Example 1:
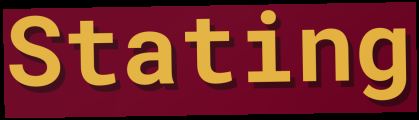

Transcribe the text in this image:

Stating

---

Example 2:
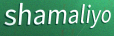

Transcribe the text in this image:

shamaliyo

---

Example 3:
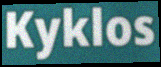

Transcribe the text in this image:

Kyklos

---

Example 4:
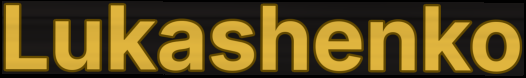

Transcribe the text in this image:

Lukashenko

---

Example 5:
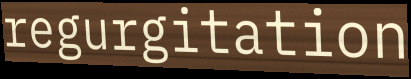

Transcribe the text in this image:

regurgitation